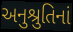
અનુશ્રુતિનાં